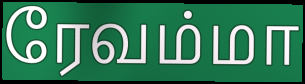
ரேவம்மா